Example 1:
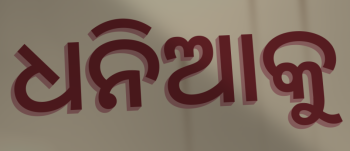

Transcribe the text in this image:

ଧନିଆକୁ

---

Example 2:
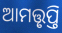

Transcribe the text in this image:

ଆମତ୍ତୃପ୍ତି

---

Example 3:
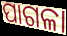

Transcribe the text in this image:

ପାଗଳା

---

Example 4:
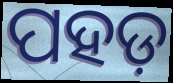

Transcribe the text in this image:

ପହଡ଼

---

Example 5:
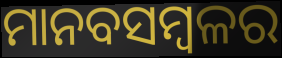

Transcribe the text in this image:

ମାନବସମ୍ବଳର